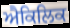
ਐਕਿਲਿਕ